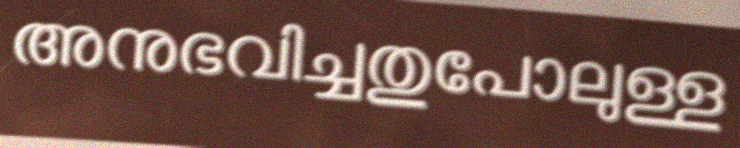
അനുഭവിച്ചതുപോലുള്ള